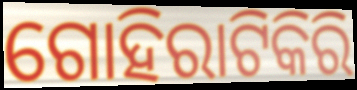
ଗୋହିରାଟିକିରି